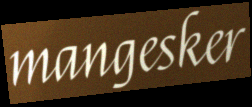
mangesker